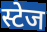
स्टेज